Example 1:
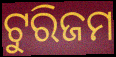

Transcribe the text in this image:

ଟୁରିଜମ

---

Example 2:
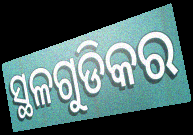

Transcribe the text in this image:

ସ୍ଥଳଗୁଡିକର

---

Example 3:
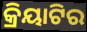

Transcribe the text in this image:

କ୍ରିୟାଟିର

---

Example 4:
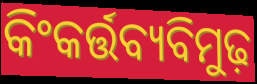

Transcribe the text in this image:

କିଂକର୍ତ୍ତବ୍ୟବିମୁଢ଼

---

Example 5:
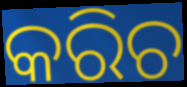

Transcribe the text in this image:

କରିଚ